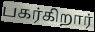
பகர்கிறார்